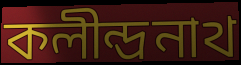
কলীন্দ্রনাথ